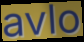
avlo